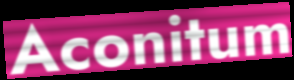
Aconitum